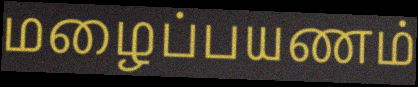
மழைப்பயணம்